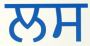
ਲਸ